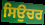
ਸਿਉਚਰ